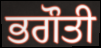
ਭਗੌਤੀ